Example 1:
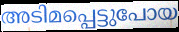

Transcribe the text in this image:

അടിമപ്പെട്ടുപോയ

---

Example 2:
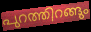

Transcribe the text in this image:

പുറത്തിറങ്ങും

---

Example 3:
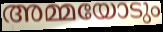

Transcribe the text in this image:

അമ്മയോടും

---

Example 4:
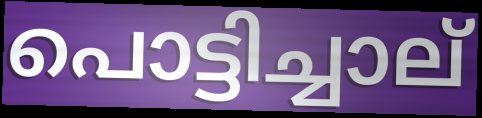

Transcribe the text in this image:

പൊട്ടിച്ചാല്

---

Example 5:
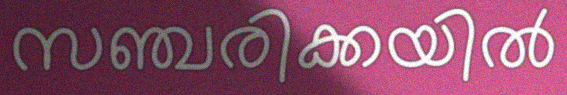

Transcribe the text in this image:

സഞ്ചരിക്കയിൽ